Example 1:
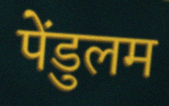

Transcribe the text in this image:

पेंडुलम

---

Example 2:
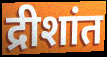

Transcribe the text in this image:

द्रीशांत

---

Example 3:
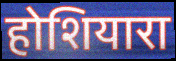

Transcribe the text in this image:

होशियारा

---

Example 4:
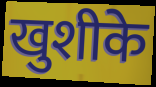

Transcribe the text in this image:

खुशीके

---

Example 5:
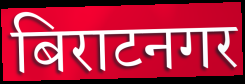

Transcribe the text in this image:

बिराटनगर